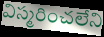
విస్మరించలేని